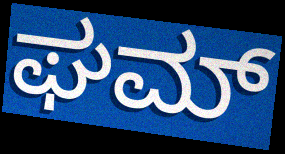
ಘಮ್